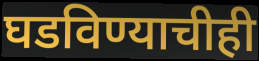
घडविण्याचीही